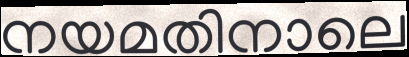
നയമതിനാലെ